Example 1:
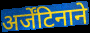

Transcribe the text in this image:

अर्जेंटिनाने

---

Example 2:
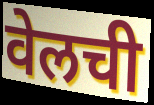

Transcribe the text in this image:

वेलची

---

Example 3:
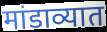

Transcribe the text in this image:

मांडाव्यात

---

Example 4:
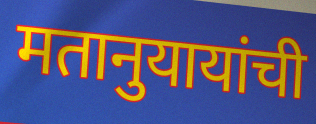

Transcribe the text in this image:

मतानुयायांची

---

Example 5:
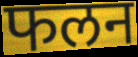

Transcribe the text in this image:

फलन